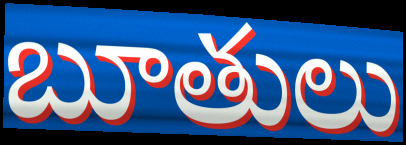
బూతులు